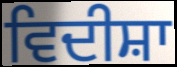
ਵਿਦੀਸ਼ਾ